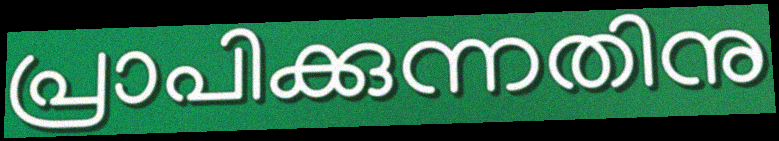
പ്രാപിക്കുന്നതിനു